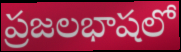
ప్రజలభాషలో